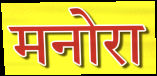
मनोरा